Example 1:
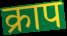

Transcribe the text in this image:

क्राप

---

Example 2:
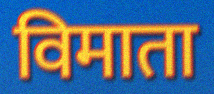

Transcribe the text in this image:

विमाता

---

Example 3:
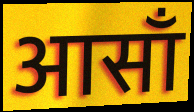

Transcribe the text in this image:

आसाँ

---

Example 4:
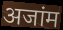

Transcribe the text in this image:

अजांम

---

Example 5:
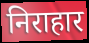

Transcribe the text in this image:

निराहार